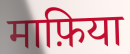
माफ़िया